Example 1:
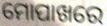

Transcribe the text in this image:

ମୋପାଖରେ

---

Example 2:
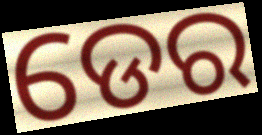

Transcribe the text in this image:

ଡେର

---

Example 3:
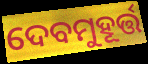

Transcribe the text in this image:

ଦେବମୁହୂର୍ତ୍ତ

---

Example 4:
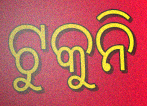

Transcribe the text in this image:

ଟୁକୁନି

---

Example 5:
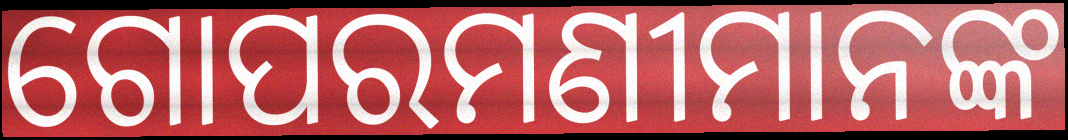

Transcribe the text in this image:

ଗୋପରମଣୀମାନଙ୍କ